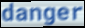
danger